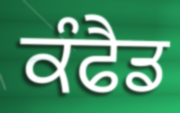
ਕੰਫੈਡ